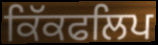
ਕਿੱਕਫਲਿਪ